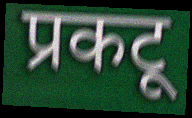
प्रकटू